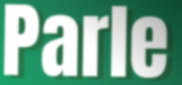
Parle